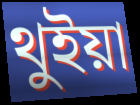
থুইয়া